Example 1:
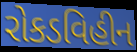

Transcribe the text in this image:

રોકડવિહીન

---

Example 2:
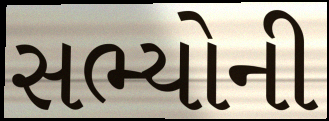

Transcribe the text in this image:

સભ્યોની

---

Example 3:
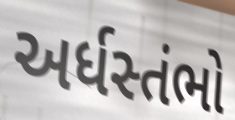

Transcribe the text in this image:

અર્ધસ્તંભો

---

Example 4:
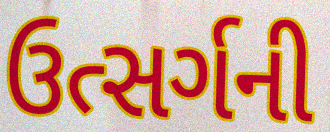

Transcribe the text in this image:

ઉત્સર્ગની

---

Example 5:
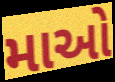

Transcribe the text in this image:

માઓ